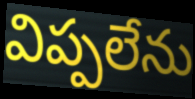
విప్పలేను